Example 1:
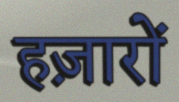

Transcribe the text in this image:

हज़ारों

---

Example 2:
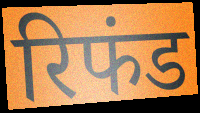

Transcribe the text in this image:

रिफंड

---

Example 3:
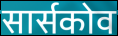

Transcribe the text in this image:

सार्सकोव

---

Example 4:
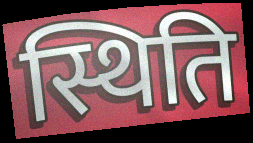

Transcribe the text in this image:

स्थिति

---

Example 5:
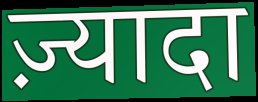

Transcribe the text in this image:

ज़्यादा